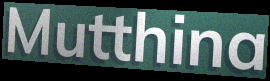
Mutthina